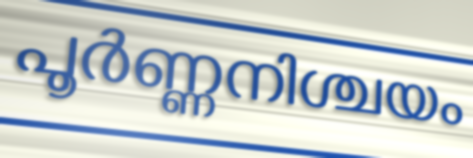
പൂർണ്ണനിശ്ചയം